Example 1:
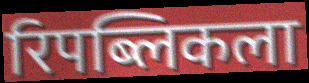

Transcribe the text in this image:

रिपब्लिकला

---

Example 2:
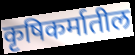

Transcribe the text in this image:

कृषिकर्मातील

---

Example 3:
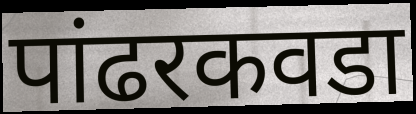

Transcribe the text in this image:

पांढरकवडा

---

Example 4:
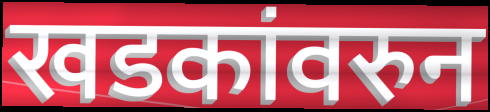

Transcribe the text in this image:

खडकांवरुन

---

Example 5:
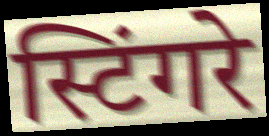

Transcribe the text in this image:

स्टिंगरे